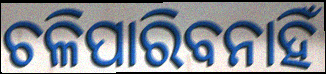
ଚଳିପାରିବନାହିଁ